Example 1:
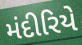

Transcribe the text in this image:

મંદીરિયે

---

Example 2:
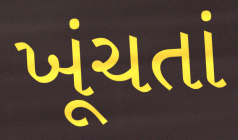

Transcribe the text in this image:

ખૂંચતાં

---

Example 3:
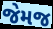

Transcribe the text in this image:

જેમજ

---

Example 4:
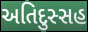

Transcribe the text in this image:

અતિદુસ્સહ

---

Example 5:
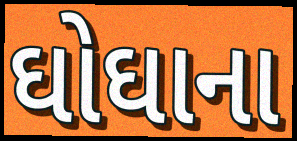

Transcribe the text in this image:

ઘોઘાના